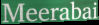
Meerabai